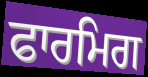
ਫਾਰਮਿਗ